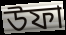
উফা